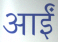
आईं